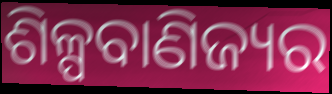
ଶିଳ୍ପବାଣିଜ୍ୟର